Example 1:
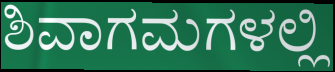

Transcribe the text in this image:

ಶಿವಾಗಮಗಳಲ್ಲಿ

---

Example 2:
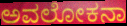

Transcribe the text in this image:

ಅವಲೋಕನಾ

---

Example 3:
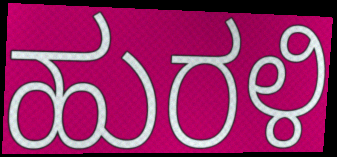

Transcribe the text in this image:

ಹುರಳಿ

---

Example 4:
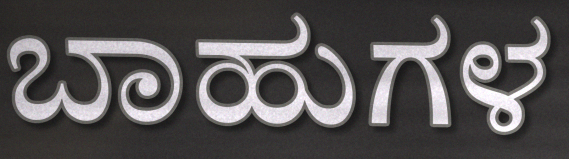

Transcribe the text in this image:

ಬಾಹುಗಳ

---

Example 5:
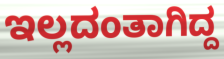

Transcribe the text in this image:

ಇಲ್ಲದಂತಾಗಿದ್ದ